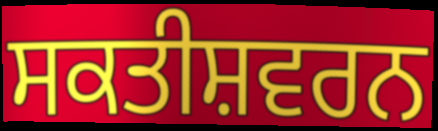
ਸਕਤੀਸ਼ਵਰਨ